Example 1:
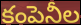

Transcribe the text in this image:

కంపెనీల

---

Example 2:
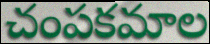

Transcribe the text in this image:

చంపకమాల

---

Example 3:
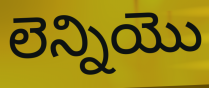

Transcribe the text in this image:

లెన్నియొ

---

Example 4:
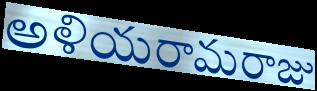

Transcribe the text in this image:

అళియరామరాజు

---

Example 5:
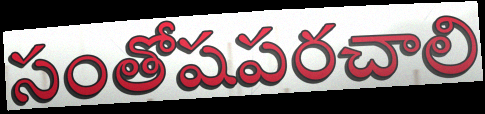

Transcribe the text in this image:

సంతోషపరచాలి